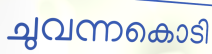
ചുവന്നകൊടി